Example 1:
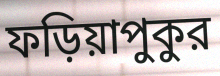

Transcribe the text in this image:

ফড়িয়াপুকুর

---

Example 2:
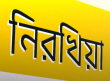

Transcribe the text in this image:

নিরখিয়া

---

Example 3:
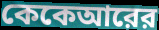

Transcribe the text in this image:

কেকেআরের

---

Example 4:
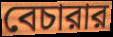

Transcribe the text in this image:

বেচারার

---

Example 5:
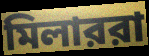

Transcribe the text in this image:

মিলাররা